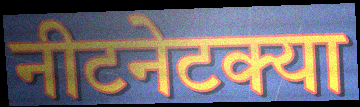
नीटनेटक्‍या